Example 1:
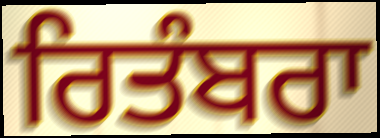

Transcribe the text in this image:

ਰਿਤੰਬਰਾ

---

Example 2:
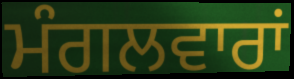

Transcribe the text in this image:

ਮੰਗਲਵਾਰਾਂ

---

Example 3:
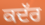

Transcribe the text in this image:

ਕਦੱਰ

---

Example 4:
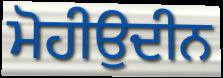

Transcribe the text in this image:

ਮੋਹੀਉਦੀਨ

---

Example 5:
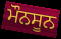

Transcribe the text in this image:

ਮੌਨਸੂਨ